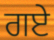
ਗਏ